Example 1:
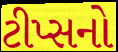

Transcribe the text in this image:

ટીપ્સનો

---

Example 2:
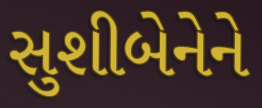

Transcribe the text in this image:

સુશીબેનેને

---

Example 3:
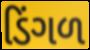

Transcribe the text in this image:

ડિંગળ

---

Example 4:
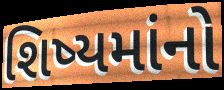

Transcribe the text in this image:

શિષ્યમાંનો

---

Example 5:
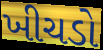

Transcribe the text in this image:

ખીચડો